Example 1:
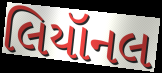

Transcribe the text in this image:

લિયૉનલ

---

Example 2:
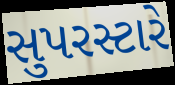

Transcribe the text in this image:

સુપરસ્ટારે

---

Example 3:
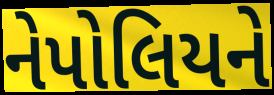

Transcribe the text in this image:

નેપોલિયને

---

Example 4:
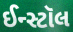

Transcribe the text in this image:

ઈન્સ્ટૉલ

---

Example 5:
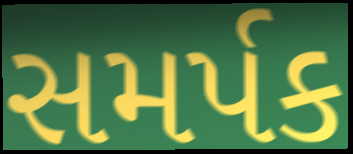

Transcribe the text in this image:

સમર્પક